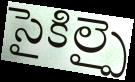
సైకిల్పై